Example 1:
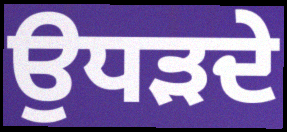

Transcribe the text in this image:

ਉਧੜਦੇ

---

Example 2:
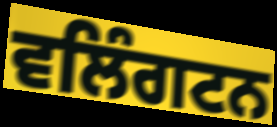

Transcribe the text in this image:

ਵਲਿੰਗਟਨ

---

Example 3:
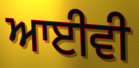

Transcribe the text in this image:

ਆਈਵੀ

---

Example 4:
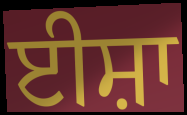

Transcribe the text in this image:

ਈਸ਼ਾ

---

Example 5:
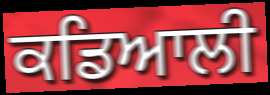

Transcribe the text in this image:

ਕਡਿਆਲੀ